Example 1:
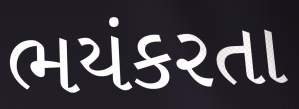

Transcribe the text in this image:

ભયંકરતા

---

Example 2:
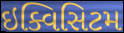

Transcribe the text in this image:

ઇક્વિસિટમ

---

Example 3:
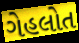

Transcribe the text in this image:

ગેહલોત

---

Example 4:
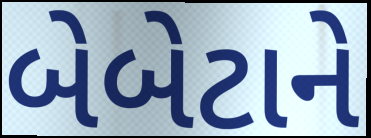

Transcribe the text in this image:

બેબેટાને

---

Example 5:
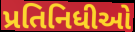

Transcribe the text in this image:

પ્રતિનિધીઓ